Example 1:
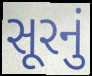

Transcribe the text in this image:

સૂરનું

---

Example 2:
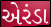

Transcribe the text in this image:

એરંડા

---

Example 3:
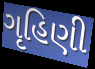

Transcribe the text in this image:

ગૃહિણી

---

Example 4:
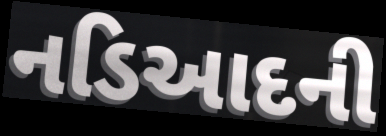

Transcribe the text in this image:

નડિઆદની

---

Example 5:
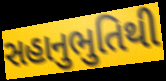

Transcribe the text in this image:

સહાનુભુતિથી